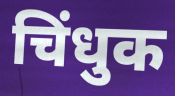
चिंधुक